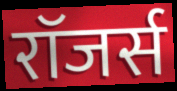
रॉजर्स